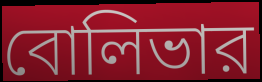
বোলিভার